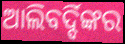
ଆଲିବର୍ଦ୍ଦିଙ୍କର